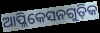
ଆପ୍ଳିକେସନଗୁଡ଼ିକ